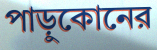
পাড়ুকোনের